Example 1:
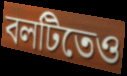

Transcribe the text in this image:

বলটিতেও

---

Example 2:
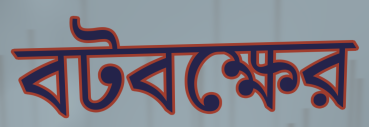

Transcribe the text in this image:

বটবক্ষের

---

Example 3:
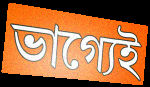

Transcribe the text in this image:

ভাগ্যেই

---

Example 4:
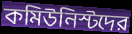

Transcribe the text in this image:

কমিউনিস্টদের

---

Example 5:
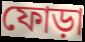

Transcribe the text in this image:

ফোড়া